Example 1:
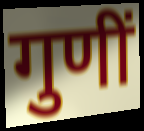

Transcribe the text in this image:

गुणीं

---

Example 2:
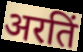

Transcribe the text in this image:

अरतिं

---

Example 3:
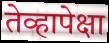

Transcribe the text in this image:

तेव्हापेक्षा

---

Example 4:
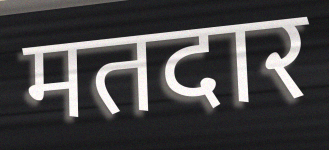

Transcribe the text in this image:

मतदार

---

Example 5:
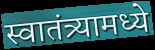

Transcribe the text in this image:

स्वातंत्र्यामध्ये